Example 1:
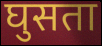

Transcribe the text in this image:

घुसता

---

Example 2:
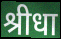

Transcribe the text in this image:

श्रीधा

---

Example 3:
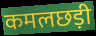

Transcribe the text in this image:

कमलछड़ी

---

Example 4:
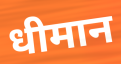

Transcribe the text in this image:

धीमान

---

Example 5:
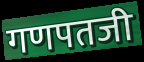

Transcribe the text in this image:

गणपतजी